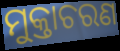
ମୁକ୍ତାଚରଣ